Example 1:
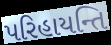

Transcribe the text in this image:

પરિહાયન્તિ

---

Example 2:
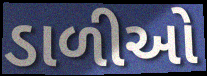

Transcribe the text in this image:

ડાળીઓ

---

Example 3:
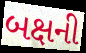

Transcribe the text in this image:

બક્ષની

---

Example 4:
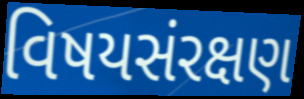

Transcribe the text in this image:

વિષયસંરક્ષણ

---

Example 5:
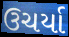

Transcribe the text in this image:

ઉચર્યા